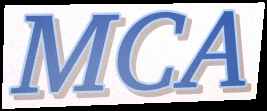
MCA